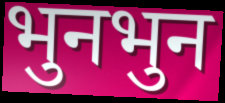
भुनभुन